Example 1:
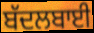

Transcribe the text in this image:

ਬੱਦਲਬਾਈ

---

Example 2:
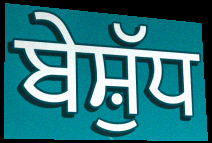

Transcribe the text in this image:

ਬੇਸ਼ੁੱਧ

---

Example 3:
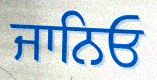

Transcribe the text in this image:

ਜਾਨਿਓ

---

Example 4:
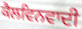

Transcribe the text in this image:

ਕੈਲਵਿਨਵਾਦੀ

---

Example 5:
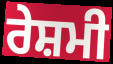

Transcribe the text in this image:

ਰੇਸ਼ਮੀ